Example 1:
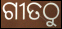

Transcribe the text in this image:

ଗୀତଠୁ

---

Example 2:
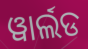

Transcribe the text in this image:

ୱାର୍ଲଡ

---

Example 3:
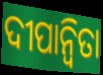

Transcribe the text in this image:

ଦୀପାନ୍ୱିତା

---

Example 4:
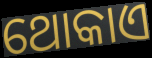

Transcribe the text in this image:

ଥୋକାଏ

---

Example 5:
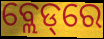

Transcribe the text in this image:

ବ୍ଲେଡ୍‌ରେ